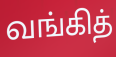
வங்கித்